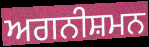
ਅਗਨੀਸ਼ਮਨ